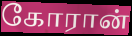
கோரான்